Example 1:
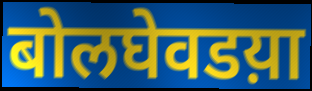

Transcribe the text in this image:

बोलघेवडय़ा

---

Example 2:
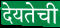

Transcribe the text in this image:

देयतेची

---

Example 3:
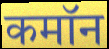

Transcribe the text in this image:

कमॉन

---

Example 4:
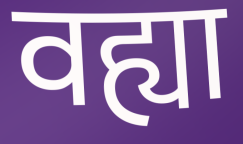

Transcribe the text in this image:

वह्या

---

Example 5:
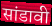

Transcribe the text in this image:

सांडावी